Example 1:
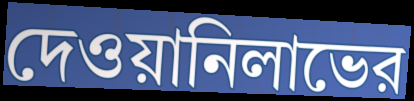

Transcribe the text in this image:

দেওয়ানিলাভের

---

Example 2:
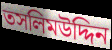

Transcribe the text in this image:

তসলিমউদ্দিন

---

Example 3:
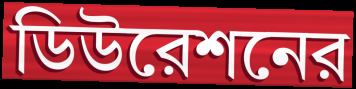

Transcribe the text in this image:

ডিউরেশনের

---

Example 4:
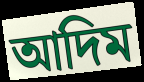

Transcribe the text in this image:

আদিম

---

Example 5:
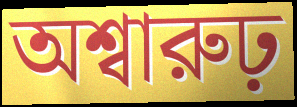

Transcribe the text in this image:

অশ্বারুঢ়